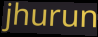
jhurun